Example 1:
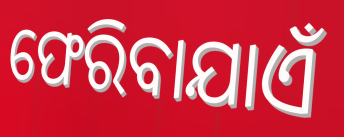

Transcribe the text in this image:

ଫେରିବାଯାଏଁ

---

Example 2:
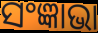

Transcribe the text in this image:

ସଂଜ୍ଞାଭା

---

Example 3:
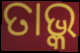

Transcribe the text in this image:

ତାଭ୍କ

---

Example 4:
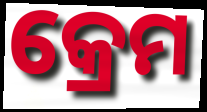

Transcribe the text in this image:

କ୍ରେମ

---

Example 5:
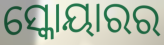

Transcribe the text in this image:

ସ୍କୋୟାରର